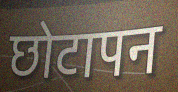
छोटापन